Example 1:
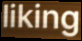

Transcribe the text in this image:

liking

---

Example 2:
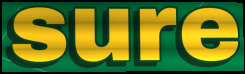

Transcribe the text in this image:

sure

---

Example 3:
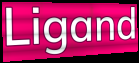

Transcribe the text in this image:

Ligand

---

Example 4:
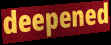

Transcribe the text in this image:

deepened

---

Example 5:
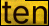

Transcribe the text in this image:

ten